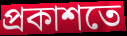
প্রকাশতে